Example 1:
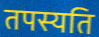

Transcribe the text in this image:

तपस्यति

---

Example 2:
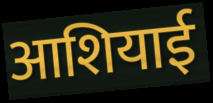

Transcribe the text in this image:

आशियाई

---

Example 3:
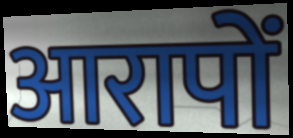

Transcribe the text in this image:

आरापों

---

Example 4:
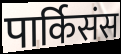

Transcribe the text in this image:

पार्किसंस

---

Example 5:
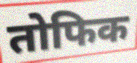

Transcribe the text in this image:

तोफिक